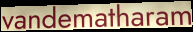
vandematharam